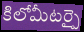
కిలోమీటర్పై